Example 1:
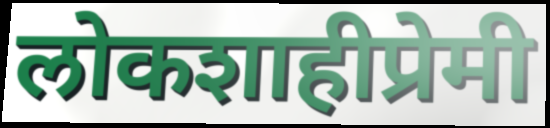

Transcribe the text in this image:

लोकशाहीप्रेमी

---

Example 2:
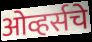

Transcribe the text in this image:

ओव्हर्सचे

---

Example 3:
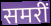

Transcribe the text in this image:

समरीं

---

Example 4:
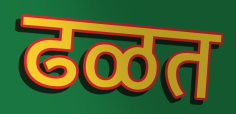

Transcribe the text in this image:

ढळत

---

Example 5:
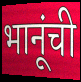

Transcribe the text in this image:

भानूंची